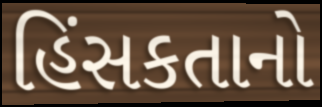
હિંસકતાનો